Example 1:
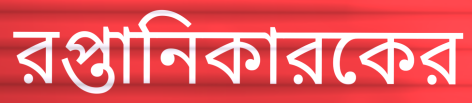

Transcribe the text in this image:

রপ্তানিকারকের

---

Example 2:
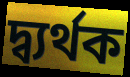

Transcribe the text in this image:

দ্ব্যর্থক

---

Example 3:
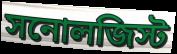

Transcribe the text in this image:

সনোলজিস্ট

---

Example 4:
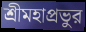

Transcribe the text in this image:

শ্রীমহাপ্রভুর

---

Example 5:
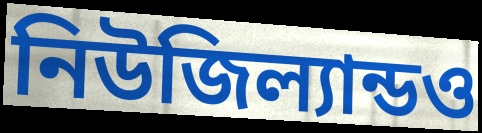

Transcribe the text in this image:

নিউজিল্যান্ডও